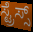
ಸ್ಟ್ರೆಸ್ಸ್